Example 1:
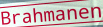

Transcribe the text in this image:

Brahmanen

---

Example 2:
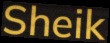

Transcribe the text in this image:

Sheik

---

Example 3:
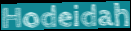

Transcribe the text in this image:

Hodeidah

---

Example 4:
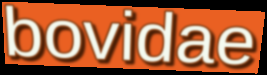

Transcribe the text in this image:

bovidae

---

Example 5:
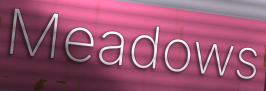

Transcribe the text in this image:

Meadows